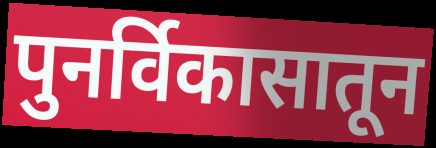
पुनर्विकासातून